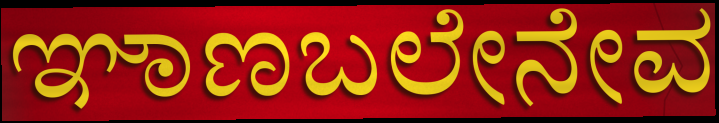
ಞಾಣಬಲೇನೇವ